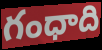
గంధాది